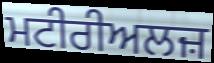
ਮਟੀਰੀਅਲਜ਼